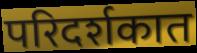
परिदर्शकात